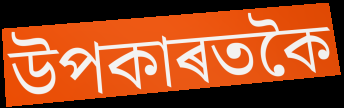
উপকাৰতকৈ